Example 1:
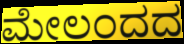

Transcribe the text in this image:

ಮೇಲಂದದ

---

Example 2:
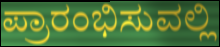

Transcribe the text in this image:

ಪ್ರಾರಂಭಿಸುವಲ್ಲಿ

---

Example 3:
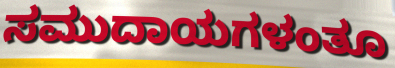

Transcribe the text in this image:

ಸಮುದಾಯಗಳಂತೂ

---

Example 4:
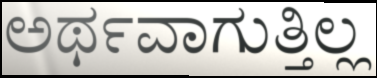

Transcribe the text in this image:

ಅರ್ಥವಾಗುತ್ತಿಲ್ಲ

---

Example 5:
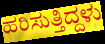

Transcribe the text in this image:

ಹರಿಸುತ್ತಿದ್ದಳು